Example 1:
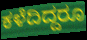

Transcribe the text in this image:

ಕಳೆದಿದ್ದರೂ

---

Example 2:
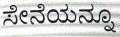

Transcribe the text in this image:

ಸೇನೆಯನ್ನೂ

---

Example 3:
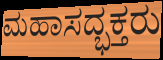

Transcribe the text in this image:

ಮಹಾಸದ್ಭಕ್ತರು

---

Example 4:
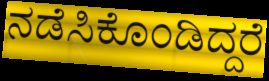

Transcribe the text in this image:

ನಡೆಸಿಕೊಂಡಿದ್ದರೆ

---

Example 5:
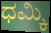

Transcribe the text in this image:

ಧಮ್ಕಿ